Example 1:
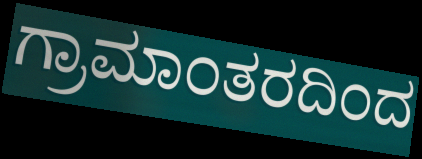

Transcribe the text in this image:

ಗ್ರಾಮಾಂತರದಿಂದ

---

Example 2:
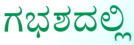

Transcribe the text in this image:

ಗಭಶದಲ್ಲಿ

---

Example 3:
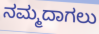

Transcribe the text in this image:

ನಮ್ಮದಾಗಲು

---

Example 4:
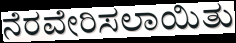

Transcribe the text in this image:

ನೆರವೇರಿಸಲಾಯಿತು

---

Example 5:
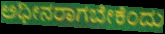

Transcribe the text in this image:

ಅಧೀನರಾಗಬೇಕೆಂದು